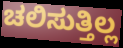
ಚಲಿಸುತ್ತಿಲ್ಲ